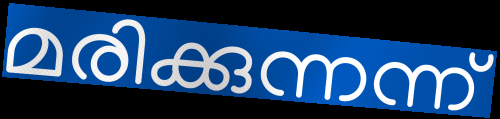
മരിക്കുന്നന്ന്